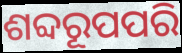
ଶବ୍ଦରୂପପରି